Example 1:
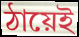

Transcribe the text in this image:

ঠায়েই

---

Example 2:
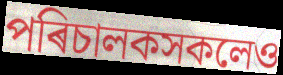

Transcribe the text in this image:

পৰিচালকসকলেও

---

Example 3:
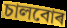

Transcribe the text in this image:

চালবোৰ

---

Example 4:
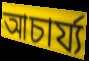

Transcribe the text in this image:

আচাৰ্য্য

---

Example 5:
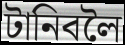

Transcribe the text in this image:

টানিবলৈ